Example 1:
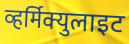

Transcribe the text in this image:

व्हर्मिक्युलाइट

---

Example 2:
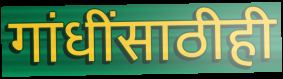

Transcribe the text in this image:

गांधींसाठीही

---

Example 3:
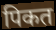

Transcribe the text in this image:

पिकत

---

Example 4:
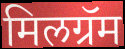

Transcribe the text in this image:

मिलग्रॅम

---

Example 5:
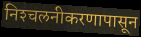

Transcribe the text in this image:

निश्चलनीकरणापासून